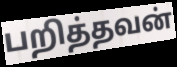
பறித்தவன்